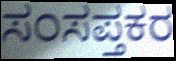
ಸಂಸಪ್ತಕರ